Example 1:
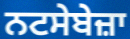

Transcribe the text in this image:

ਨਟਸੇਬੇਜ਼ਾ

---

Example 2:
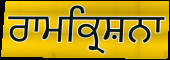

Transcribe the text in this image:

ਰਾਮਕ੍ਰਿਸ਼ਨਾ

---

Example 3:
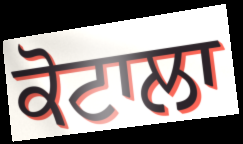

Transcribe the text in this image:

ਕੋਟਾਲਾ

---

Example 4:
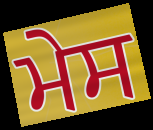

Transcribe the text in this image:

ਮੇਸ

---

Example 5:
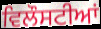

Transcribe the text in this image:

ਵਿਲੌਸਟੀਆਂ